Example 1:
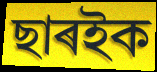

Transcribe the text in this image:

ছাৰইক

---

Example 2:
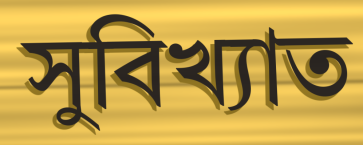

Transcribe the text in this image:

সুবিখ্যাত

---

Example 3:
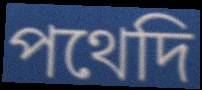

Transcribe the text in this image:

পথেদি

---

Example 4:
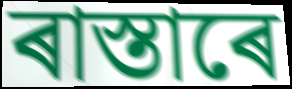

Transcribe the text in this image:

ৰাস্তাৰে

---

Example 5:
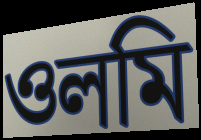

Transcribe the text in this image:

ওলমি